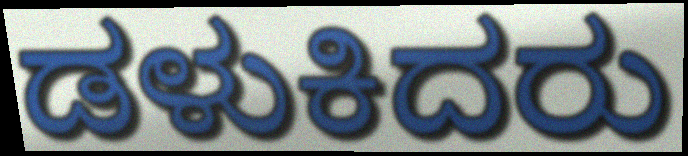
ಡಳುಕಿದರು